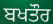
ਬਖਤੌਰ